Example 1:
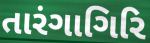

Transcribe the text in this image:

તારંગાગિરિ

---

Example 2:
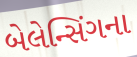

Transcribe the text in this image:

બેલેન્સિંગના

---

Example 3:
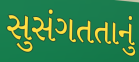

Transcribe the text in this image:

સુસંગતતાનું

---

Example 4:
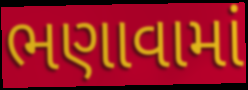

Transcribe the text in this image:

ભણાવામાં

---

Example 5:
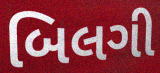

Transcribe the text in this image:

બિલગી